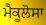
ਮੈਕੂਲੋਸਾ